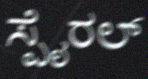
ಸ್ಪೈರಲ್